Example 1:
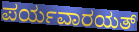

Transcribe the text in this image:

ಪರ್ಯವಾರಯತ್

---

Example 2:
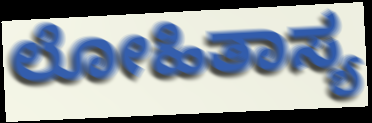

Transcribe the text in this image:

ಲೋಹಿತಾಸ್ಯ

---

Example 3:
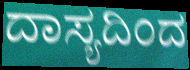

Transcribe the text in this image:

ದಾಸ್ಯದಿಂದ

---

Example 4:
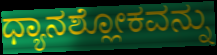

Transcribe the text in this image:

ಧ್ಯಾನಶ್ಲೋಕವನ್ನು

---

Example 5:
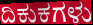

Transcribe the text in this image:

ದಿಕುಕಗಳು